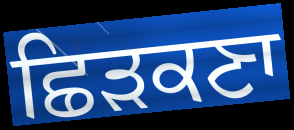
ਛਿੜਕਣਾ